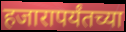
हजारापर्यंतच्या